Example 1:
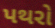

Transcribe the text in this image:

પથરો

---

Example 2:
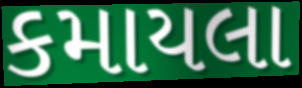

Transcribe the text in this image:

કમાયલા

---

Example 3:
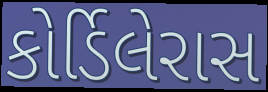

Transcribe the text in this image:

કોર્ડિલેરાસ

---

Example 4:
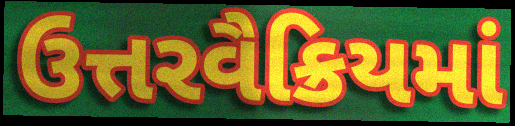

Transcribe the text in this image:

ઉત્તરવૈક્રિયમાં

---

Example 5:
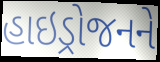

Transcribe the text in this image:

હાઇડ્રોજનને